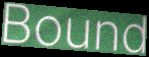
Bound